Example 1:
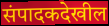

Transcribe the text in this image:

संपादकदेखील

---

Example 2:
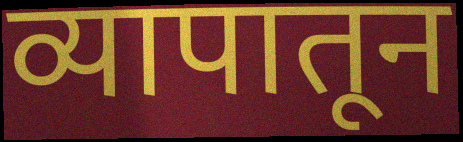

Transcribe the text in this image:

व्यापातून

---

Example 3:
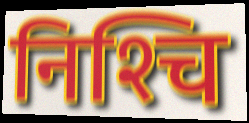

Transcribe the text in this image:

निश्चि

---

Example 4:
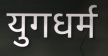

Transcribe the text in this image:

युगधर्म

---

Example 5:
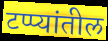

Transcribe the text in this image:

टप्प्यांतील